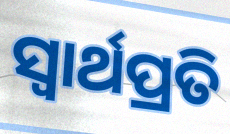
ସ୍ୱାର୍ଥପ୍ରତି